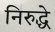
निरुद्धे